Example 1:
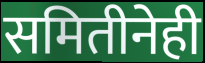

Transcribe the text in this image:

समितीनेही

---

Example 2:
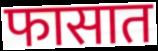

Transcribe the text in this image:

फासात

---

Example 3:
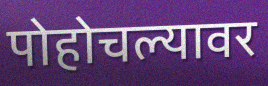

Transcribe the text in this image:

पोहोचल्यावर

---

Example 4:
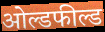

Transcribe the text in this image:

ओल्डफील्ड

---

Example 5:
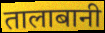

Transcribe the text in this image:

तालाबानी